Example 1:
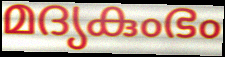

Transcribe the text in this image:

മദ്യകുംഭം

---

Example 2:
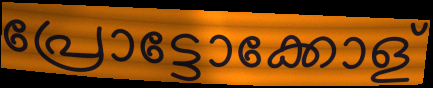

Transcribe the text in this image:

പ്രോട്ടോക്കോള്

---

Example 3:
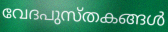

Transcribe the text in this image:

വേദപുസ്തകങ്ങൾ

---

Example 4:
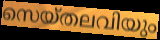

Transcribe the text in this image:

സെയ്തലവിയും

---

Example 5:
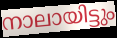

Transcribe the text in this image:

നാലായിട്ടും